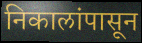
निकालांपासून